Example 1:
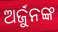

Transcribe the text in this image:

ଅର୍ଜୁନଙ୍କ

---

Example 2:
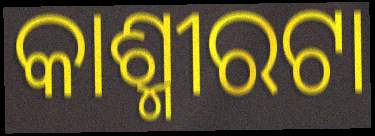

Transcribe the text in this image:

କାଶ୍ମୀରଟା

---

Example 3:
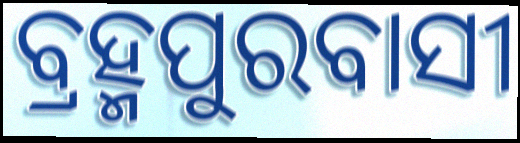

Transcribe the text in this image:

ବ୍ରହ୍ମପୁରବାସୀ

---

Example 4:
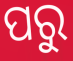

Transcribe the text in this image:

ପରୁ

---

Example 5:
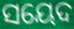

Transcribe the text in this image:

ସୟେଦ